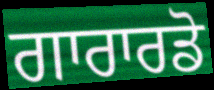
ਗਾਰਾਰਡੋ